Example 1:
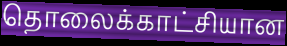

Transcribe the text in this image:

தொலைக்காட்சியான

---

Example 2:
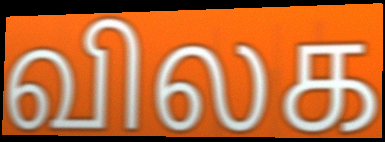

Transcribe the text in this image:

விலக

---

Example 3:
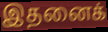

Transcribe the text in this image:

இதனைக்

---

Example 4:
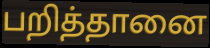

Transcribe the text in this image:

பறித்தானை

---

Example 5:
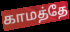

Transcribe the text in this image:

காமத்தே